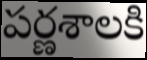
పర్ణశాలకి